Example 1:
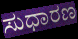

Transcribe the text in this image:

ಸುಧಾರಣ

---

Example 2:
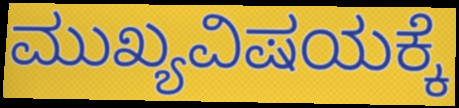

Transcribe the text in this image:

ಮುಖ್ಯವಿಷಯಕ್ಕೆ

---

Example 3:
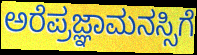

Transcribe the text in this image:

ಅರೆಪ್ರಜ್ಞಾಮನಸ್ಸಿಗೆ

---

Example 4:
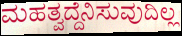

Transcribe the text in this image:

ಮಹತ್ವದ್ದೆನಿಸುವುದಿಲ್ಲ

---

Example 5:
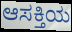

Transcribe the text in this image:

ಆಸಕ್ತಿಯ